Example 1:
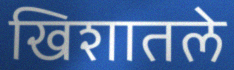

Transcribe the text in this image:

खिशातले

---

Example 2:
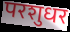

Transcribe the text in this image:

परशुधर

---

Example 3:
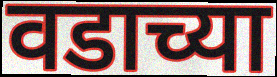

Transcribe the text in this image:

वडाच्या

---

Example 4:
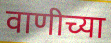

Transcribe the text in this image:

वाणीच्या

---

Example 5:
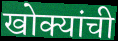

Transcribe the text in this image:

खोक्यांची